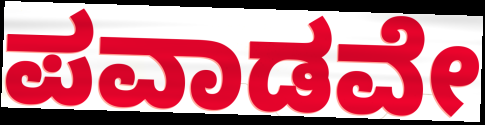
ಪವಾಡವೇ